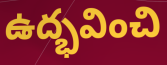
ఉద్భవించి